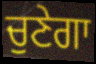
ਚੁਣੇਗਾ